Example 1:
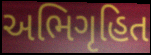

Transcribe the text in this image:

અભિગૃહિત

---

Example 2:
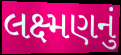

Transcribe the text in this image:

લક્ષ્મણનું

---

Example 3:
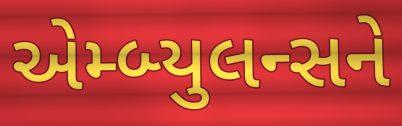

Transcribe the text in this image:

એમ્બ્યુલન્સને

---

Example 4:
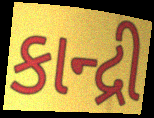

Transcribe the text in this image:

કાન્દ્રી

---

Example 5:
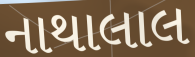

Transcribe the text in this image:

નાથાલાલ